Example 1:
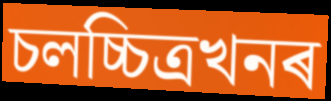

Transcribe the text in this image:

চলচ্চিত্ৰখনৰ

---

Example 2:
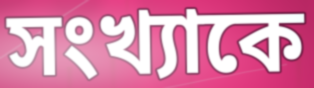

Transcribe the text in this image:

সংখ্যাকে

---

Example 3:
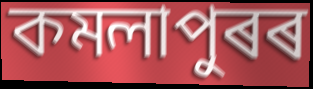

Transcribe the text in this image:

কমলাপুৰৰ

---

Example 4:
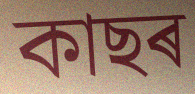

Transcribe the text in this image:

কাছৰ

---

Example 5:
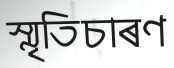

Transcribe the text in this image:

স্মৃতিচাৰণ